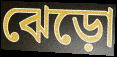
ঝেড়ো